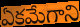
ఏకమేగాని